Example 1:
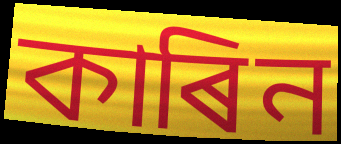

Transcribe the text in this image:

কাৰিন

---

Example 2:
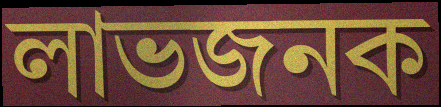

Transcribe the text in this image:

লাভজনক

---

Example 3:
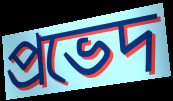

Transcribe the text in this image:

প্ৰভেদ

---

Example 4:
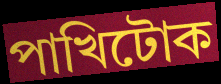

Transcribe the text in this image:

পাখিটোক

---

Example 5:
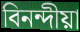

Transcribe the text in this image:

বিনন্দীয়া